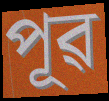
পূৱ